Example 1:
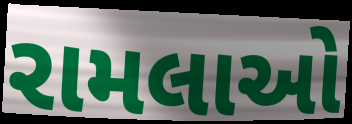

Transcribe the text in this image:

રામલાઓ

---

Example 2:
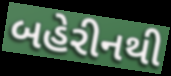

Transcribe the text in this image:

બહેરીનથી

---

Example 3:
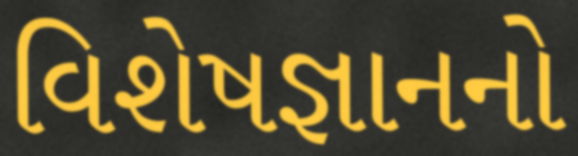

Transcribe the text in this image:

વિશેષજ્ઞાનનો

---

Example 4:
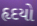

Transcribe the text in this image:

હૃદયો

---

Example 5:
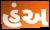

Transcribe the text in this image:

હંઅ